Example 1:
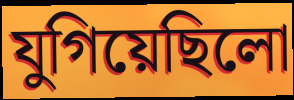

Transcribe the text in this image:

যুগিয়েছিলো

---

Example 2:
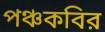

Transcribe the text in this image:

পঞ্চকবির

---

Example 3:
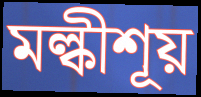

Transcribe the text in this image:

মল্কীশূয়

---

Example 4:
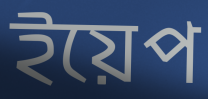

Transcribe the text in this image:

ইয়েপ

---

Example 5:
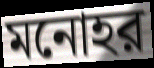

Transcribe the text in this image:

মনোহর